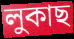
লুকাছ